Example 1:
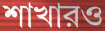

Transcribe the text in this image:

শাখারও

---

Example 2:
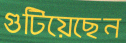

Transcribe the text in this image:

গুটিয়েছেন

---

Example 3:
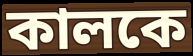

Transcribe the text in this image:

কালকে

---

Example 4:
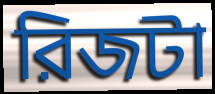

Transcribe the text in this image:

রিজটা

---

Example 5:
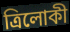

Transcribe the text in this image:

ত্রিলোকী